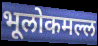
भूलोकमल्ल